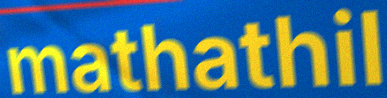
mathathil